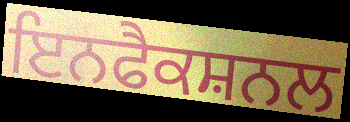
ਇਨਫੈਕਸ਼ਨਲ